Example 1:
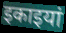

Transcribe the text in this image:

इकाइयां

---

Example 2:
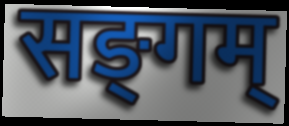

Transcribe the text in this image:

सङ्गम्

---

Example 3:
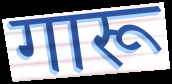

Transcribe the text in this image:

गारू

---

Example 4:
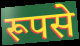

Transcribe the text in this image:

रूपसे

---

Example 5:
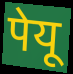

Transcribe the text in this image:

पेयू